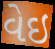
વેઇ